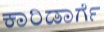
ಕಾರಿಡಾರ್ಗೆ